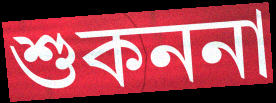
শুকননা